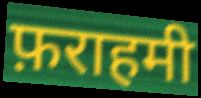
फ़राहमी